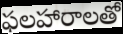
ఫలహారాలతో